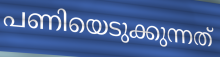
പണിയെടുക്കുന്നത്